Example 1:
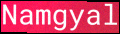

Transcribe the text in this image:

Namgyal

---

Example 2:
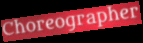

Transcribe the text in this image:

Choreographer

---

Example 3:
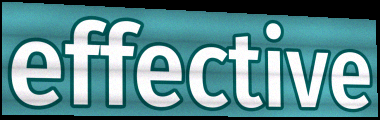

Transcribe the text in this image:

effective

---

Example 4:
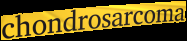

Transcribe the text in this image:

chondrosarcoma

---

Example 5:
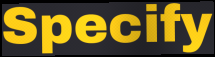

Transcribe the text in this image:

Specify